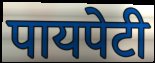
पायपेटी